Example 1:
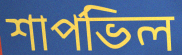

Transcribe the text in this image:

শার্পভিল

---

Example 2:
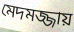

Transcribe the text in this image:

মেদমজ্জায়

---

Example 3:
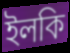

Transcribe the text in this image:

ইলকি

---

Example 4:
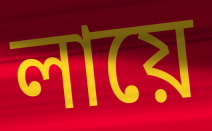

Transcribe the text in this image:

লায়ে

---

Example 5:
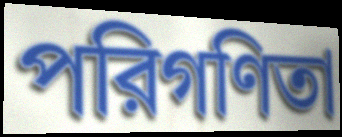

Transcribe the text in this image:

পরিগণিতা